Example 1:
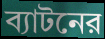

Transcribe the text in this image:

ব্যাটনের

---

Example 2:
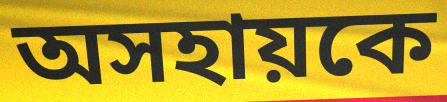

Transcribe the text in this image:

অসহায়কে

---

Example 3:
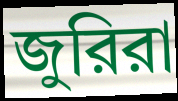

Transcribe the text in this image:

জুরিরা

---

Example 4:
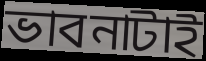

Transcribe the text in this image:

ভাবনাটাই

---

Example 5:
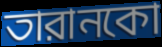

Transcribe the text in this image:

তারানকো